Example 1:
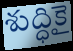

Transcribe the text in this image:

శుద్ధికై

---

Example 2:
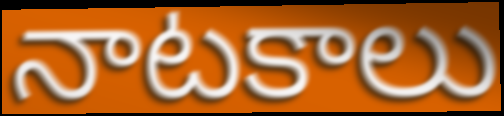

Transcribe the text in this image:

నాటకాలు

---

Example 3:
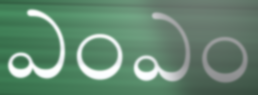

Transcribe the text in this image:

ఎంఎం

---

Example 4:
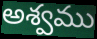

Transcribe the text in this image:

అశ్వము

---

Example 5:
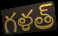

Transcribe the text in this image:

గళత్